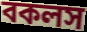
বকলস